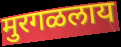
मुरगळलाय